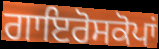
ਗਾਇਰੋਸਕੋਪਾਂ